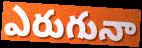
ఎరుగునా